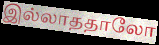
இல்லாததாலோ